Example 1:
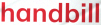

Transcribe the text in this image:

handbill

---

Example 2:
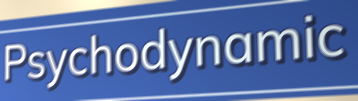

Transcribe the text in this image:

Psychodynamic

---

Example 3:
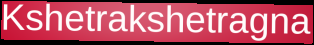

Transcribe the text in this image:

Kshetrakshetragna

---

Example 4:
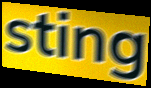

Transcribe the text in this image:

sting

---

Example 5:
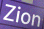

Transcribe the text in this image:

Zion